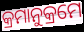
କ୍ରମାନୁକ୍ରମେ